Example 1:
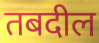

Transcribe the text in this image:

तबदील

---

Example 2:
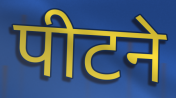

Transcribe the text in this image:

पीटने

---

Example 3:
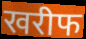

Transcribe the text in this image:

खरीफ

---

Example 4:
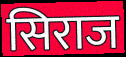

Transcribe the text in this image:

सिराज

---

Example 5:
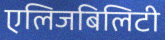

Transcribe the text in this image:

एलिजबिलिटी